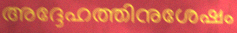
അദ്ദേഹത്തിനുശേഷം